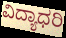
ವಿದ್ಯಾಧರಿ